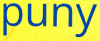
puny